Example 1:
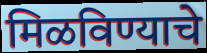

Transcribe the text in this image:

मिळविण्याचे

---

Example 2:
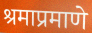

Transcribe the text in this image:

श्रमाप्रमाणे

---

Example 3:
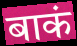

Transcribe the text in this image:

बाकं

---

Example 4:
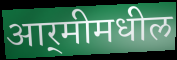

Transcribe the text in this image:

आर्मीमधील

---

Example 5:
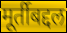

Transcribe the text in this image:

मूर्तीबद्दल